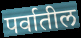
पर्वातील